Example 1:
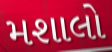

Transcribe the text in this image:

મશાલો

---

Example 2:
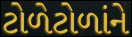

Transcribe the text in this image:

ટોળેટોળાંને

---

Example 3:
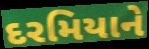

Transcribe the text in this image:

દરમિયાને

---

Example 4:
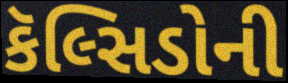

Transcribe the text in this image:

કૅલ્સિડોની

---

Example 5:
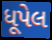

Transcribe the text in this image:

ધૂપેલ